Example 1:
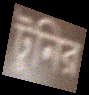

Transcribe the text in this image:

টুনির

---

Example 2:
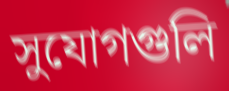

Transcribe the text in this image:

সুযোগগুলি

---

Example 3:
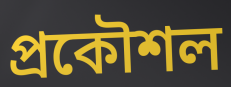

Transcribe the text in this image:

প্রকৌশল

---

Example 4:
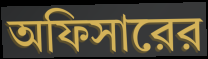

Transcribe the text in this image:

অফিসারের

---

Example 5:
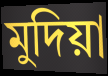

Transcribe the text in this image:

মুদিয়া